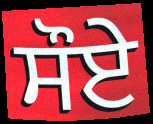
ਸੌਏ